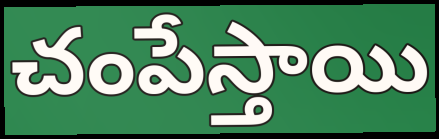
చంపేస్తాయి